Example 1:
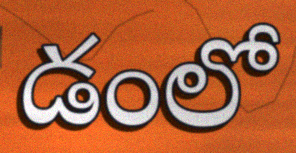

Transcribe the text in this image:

డంలో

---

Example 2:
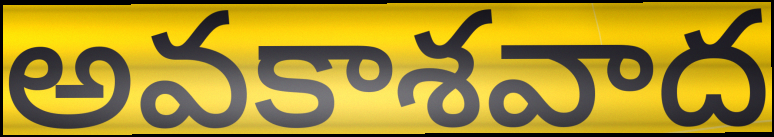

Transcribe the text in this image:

అవకాశవాద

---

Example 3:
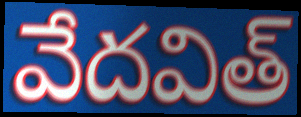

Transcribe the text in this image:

వేదవిత్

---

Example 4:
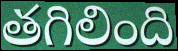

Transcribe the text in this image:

తగిలింది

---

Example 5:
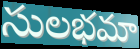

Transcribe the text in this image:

సులభమా